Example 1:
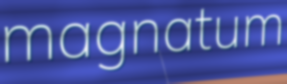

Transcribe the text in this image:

magnatum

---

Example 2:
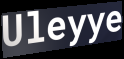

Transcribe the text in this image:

Uleyye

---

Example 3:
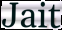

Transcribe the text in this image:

Jait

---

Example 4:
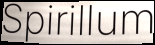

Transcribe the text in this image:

Spirillum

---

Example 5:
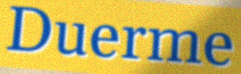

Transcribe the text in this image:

Duerme